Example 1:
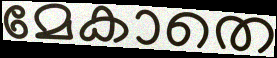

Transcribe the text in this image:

മേകാതെ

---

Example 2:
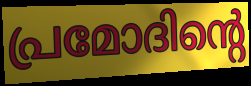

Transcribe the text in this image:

പ്രമോദിന്റെ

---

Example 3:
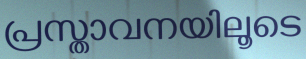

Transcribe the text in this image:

പ്രസ്താവനയിലൂടെ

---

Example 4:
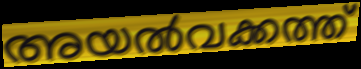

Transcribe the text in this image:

അയൽവക്കത്ത്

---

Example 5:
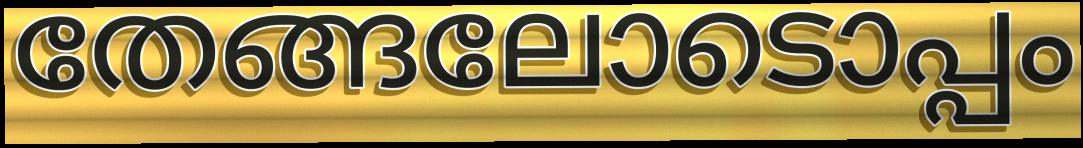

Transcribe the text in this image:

തേങ്ങലോടൊപ്പം